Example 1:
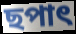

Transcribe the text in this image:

ছপাৎ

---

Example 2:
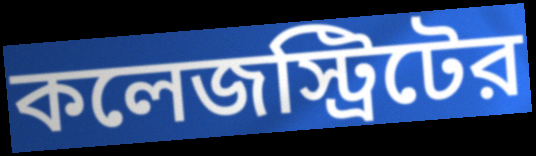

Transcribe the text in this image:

কলেজস্ট্রিটের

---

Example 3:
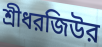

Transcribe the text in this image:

শ্রীধরজিউর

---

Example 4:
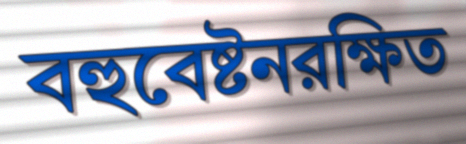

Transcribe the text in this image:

বহুবেষ্টনরক্ষিত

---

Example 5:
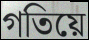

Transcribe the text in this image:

গতিয়ে